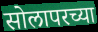
सोलापरच्या